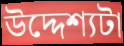
উদ্দেশ্যটা